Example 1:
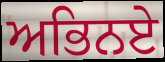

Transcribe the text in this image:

ਅਭਿਨਏ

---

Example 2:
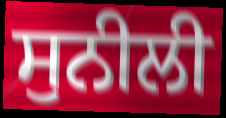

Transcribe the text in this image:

ਸੁਨੀਲੀ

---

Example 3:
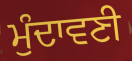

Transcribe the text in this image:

ਮੁੰਦਾਵਣੀ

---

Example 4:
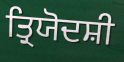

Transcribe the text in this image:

ਤ੍ਰਿਯੋਦਸ਼ੀ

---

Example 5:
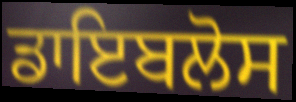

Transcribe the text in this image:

ਡਾਇਬਲੋਸ